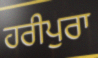
ਹਰੀਪੁਰਾ